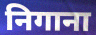
निगाना